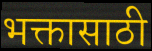
भक्तासाठी